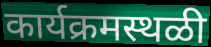
कार्यक्रमस्थळी